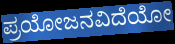
ಪ್ರಯೋಜನವಿದೆಯೋ